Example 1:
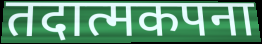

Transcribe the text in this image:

तदात्मकपना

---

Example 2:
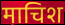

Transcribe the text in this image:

माचिश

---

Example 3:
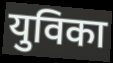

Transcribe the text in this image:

युविका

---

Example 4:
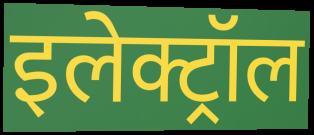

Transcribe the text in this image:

इलेक्ट्रॉल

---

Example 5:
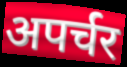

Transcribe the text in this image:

अपर्चर